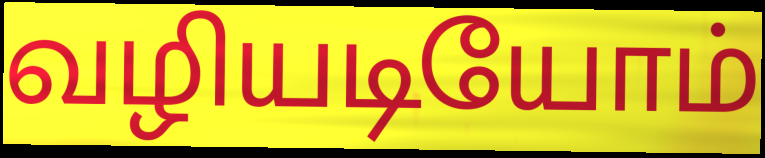
வழியடியோம்